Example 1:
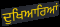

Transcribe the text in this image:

ਦੁਖਿਆਰਿਆਂ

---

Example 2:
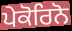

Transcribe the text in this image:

ਪੇਕੋਰਿਨੋ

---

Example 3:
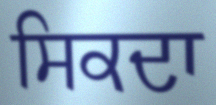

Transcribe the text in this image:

ਸਿਕਦਾ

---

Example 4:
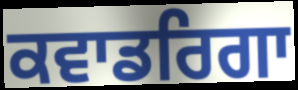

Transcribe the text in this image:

ਕਵਾਡਰਿਗਾ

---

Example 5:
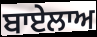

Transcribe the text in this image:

ਬਾਏਲਾਅ